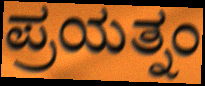
ಪ್ರಯತ್ನಂ